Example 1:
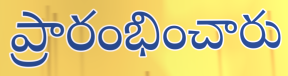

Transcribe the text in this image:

ప్రారంభించారు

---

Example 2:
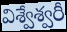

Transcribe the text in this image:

విశ్వేశ్వరీ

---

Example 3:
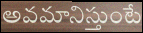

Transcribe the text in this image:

అవమానిస్తుంటే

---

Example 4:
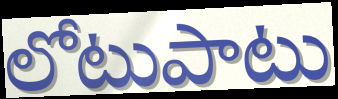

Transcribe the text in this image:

లోటుపాటు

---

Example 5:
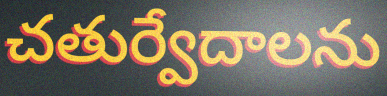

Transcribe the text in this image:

చతుర్వేదాలను